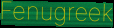
Fenugreek